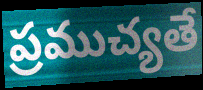
ప్రముచ్యతే